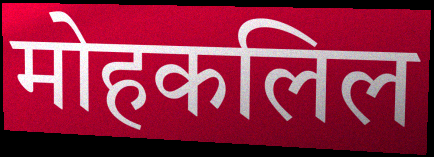
मोहकलिल